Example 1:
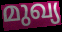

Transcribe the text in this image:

മുഖ്യ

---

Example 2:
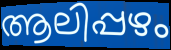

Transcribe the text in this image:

ആലിപ്പഴം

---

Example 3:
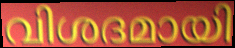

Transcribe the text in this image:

വിശദമായി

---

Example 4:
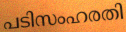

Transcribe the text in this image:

പടിസംഹരതി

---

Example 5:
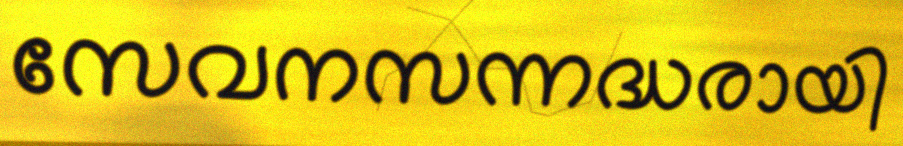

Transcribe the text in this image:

സേവനസന്നദ്ധരായി